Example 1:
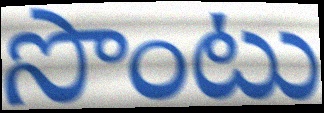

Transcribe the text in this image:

సొంటు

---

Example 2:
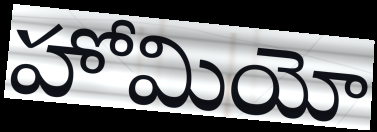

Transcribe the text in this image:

హోమియో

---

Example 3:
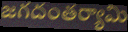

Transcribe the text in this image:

జగదంతర్యామి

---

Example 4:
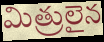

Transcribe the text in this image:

మిత్రులైన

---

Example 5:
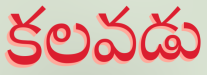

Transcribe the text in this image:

కలవడు